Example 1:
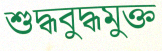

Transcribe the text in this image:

শুদ্ধবুদ্ধমুক্ত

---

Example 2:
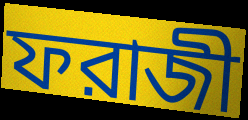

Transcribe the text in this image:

ফরাজী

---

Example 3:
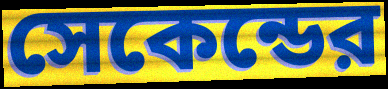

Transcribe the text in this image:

সেকেন্ডের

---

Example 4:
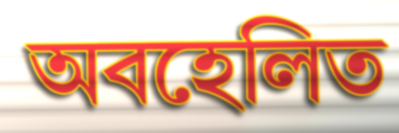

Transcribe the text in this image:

অবহেলিত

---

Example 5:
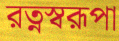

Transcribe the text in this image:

রত্নস্বরূপা